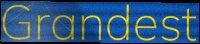
Grandest